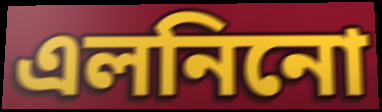
এলনিনো